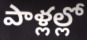
పాళ్లల్లో